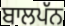
ਬਾਲਪੱਨ